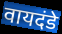
वायदंडे